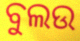
ବୁଲଉ